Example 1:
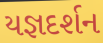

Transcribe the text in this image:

યજ્ઞદર્શન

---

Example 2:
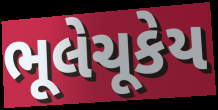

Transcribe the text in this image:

ભૂલેચૂકેય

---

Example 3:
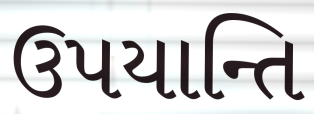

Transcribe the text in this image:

ઉપયાન્તિ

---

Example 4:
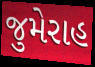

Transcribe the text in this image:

જુમેરાહ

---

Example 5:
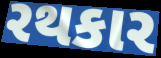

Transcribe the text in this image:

રથકાર